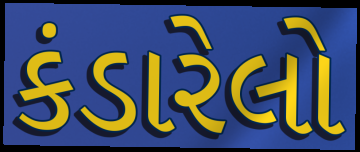
કંડારેલો